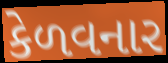
કેળવનાર